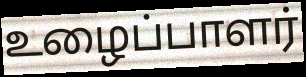
உழைப்பாளர்